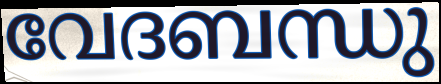
വേദബന്ധു